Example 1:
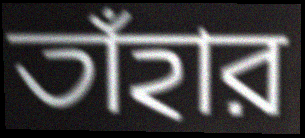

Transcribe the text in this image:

তাঁহার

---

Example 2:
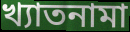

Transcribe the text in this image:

খ্যাতনামা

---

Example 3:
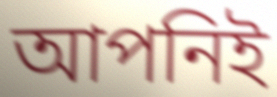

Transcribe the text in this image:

আপনিই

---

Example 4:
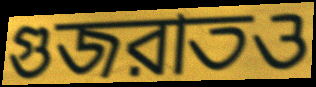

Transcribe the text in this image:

গুজরাতও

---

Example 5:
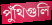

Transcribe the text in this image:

পুঁথিগুলি